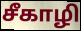
சீகாழி